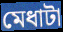
মেধাটা